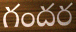
గందర